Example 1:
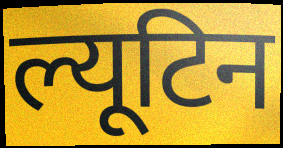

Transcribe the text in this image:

ल्यूटिन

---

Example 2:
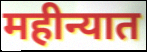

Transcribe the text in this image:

महीन्यात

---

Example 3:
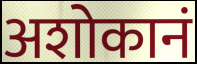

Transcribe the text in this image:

अशोकानं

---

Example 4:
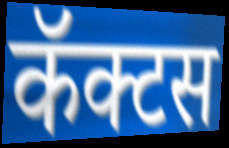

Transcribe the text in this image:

कॅक्टस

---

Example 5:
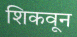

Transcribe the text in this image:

शिकवून